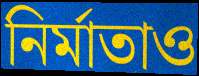
নির্মাতাও